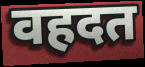
वहदत